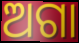
ଅଗା